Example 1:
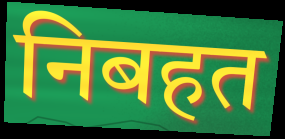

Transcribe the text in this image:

निबहत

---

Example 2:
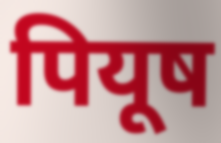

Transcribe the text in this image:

पियूष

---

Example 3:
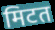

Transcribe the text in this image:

मिटत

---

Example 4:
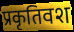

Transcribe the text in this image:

प्रकृतिवश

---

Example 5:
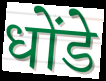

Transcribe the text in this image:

धोंडे